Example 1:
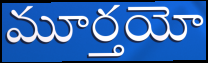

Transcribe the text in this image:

మూర్తయో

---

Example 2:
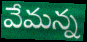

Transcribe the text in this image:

వేమన్న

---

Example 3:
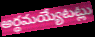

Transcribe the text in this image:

అర్థమయ్యేటట్లు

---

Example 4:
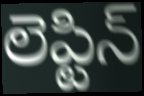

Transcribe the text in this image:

లెప్టిన్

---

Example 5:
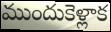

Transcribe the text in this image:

ముందుకెళ్లాక